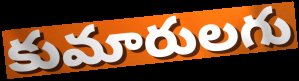
కుమారులగు